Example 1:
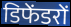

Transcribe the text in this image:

डिफेंडरों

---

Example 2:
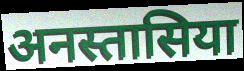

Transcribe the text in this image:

अनस्तासिया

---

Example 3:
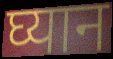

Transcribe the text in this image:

घ्यान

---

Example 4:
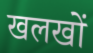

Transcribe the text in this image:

खलखों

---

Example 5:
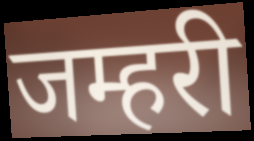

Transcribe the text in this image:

जम्हरी